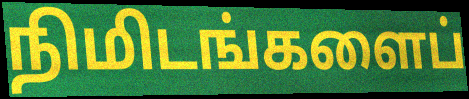
நிமிடங்களைப்